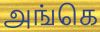
அங்கெ